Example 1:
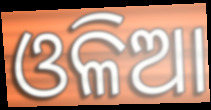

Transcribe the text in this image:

ଓଳିଆ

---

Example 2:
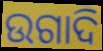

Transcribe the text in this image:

ଉଗାଦି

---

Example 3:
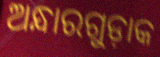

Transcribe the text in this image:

ଅନ୍ଧାରଗୁଡ଼ାକ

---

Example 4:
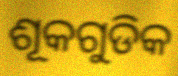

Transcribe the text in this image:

ଶୂକଗୁଡିକ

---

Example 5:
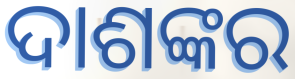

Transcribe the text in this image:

ଦାଶଙ୍କର